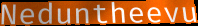
Neduntheevu